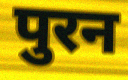
पुरन